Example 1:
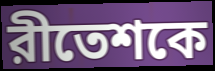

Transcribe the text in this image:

রীতেশকে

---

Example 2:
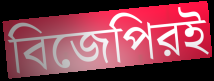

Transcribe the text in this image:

বিজেপিরই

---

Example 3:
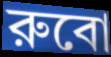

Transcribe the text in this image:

রুবো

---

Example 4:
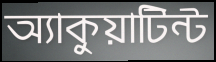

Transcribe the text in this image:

অ্যাকুয়াটিন্ট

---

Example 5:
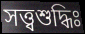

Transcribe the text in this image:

সত্ত্বশুদ্ধিঃ